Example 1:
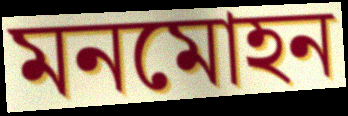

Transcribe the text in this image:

মনমোহন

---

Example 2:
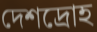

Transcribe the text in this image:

দেশদ্রোহ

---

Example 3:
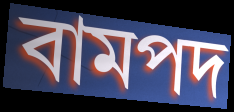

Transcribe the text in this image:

বামপদ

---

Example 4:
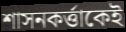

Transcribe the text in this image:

শাসনকর্ত্তাকেই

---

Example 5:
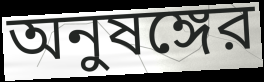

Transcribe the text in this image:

অনুষঙ্গের